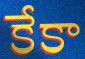
కేకా